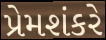
પ્રેમશંકરે